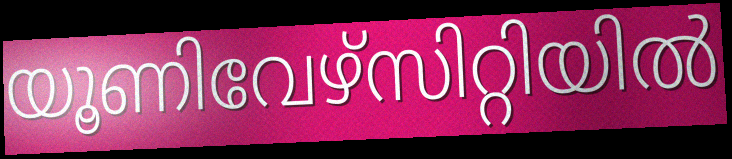
യൂണിവേഴ്സിറ്റിയിൽ